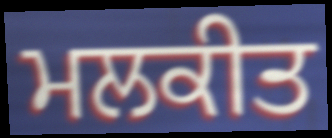
ਮਲਕੀਤ